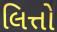
લિત્તો